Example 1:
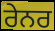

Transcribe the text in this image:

ਰੇਨਰ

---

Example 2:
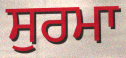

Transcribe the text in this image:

ਸੁਰਮਾ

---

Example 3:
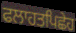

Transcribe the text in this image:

ਫਲਾਹਤਪਿਛੇਹ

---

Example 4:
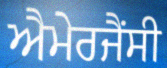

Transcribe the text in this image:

ਐਮੇਰਜੈਂਸੀ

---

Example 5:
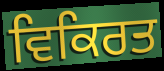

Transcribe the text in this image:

ਵਿਕਿਰਤ